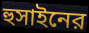
হুসাইনের